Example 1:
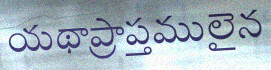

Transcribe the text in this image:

యథాప్రాప్తములైన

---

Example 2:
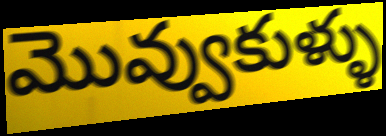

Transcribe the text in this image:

మొవ్వుకుళ్ళు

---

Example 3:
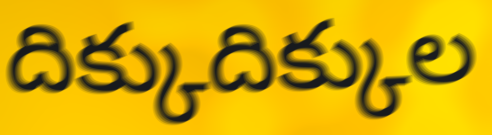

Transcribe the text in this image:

దిక్కుదిక్కుల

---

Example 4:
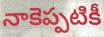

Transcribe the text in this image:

నాకెప్పటికీ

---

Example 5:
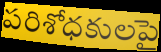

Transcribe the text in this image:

పరిశోధకులపై